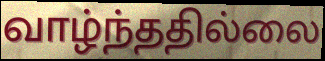
வாழ்ந்ததில்லை